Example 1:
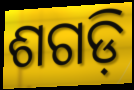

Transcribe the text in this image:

ଶଗଡ଼ି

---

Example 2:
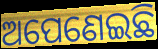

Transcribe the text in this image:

ଅପେଣେଇଛି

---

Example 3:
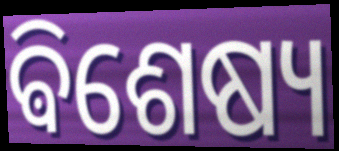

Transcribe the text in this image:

ଵିଶେଷ୍ୟ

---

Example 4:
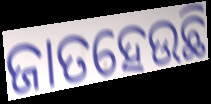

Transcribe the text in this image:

ଜାତହେଉଛି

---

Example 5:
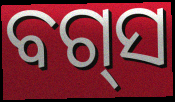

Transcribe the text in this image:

ବଗ୍‌ସ